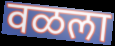
वळला